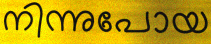
നിന്നുപോയ